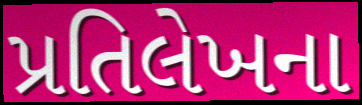
પ્રતિલેખના